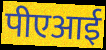
पीएआई